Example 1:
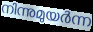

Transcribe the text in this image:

നിന്നുമുയർന്ന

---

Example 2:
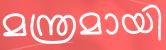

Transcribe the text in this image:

മന്ത്രമായി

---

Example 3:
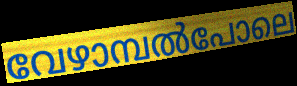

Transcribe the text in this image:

വേഴാമ്പൽപോലെ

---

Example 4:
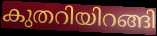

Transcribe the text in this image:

കുതറിയിറങ്ങി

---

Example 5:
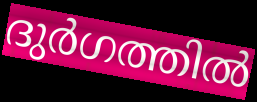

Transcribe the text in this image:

ദുർഗത്തിൽ